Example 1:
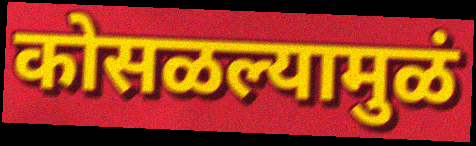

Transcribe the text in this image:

कोसळल्यामुळं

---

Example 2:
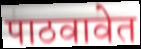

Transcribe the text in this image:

पाठवावेत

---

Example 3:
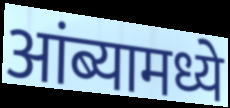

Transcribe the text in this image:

आंब्यामध्ये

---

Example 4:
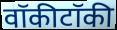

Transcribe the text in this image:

वॉकीटॉकी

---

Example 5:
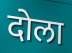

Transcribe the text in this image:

दोला